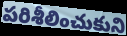
పరిశీలించుకుని